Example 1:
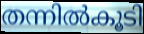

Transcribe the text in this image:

തന്നിൽകൂടി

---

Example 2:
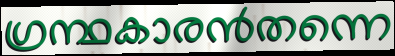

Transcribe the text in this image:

ഗ്രന്ഥകാരൻതന്നെ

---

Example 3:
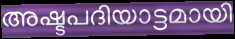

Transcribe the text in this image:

അഷ്ടപദിയാട്ടമായി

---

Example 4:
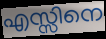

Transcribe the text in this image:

എസ്സിനെ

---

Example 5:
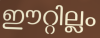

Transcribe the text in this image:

ഈറ്റില്ലം